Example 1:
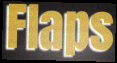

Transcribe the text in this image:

Flaps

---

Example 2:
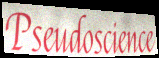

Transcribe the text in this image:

Pseudoscience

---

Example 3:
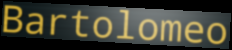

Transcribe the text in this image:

Bartolomeo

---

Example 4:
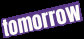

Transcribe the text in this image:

tomorrow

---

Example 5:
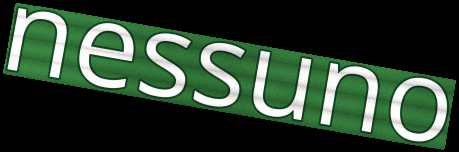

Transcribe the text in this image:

nessuno